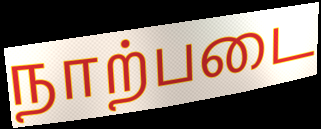
நாற்படை